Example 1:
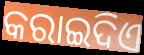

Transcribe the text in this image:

କରାଇଦିଏ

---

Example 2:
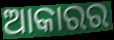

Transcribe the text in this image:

ଆକାରର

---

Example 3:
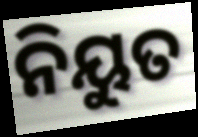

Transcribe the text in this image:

ନିୟୁତ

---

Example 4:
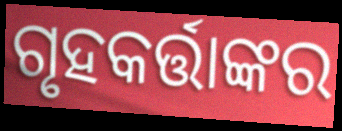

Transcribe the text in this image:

ଗୃହକର୍ତ୍ତାଙ୍କର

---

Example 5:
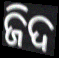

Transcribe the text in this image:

ଜିଦ